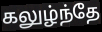
கலுழ்ந்தே